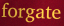
forgate